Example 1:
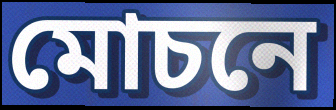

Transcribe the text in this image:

মোচনে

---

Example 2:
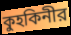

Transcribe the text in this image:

কুহকিনীর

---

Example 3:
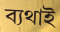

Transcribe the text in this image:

ব্যথাই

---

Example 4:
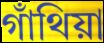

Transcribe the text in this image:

গাঁথিয়া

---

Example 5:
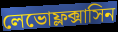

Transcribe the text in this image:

লেভোফ্লক্সাসিন